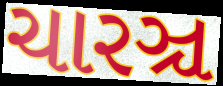
ચારઞ્ચ